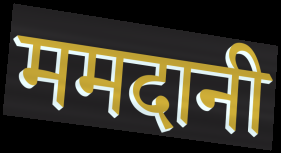
ममदानी